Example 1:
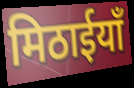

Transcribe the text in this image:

मिठाईयाँ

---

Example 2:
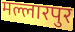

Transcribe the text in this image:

मल्लारपुर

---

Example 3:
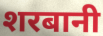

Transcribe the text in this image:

शरबानी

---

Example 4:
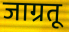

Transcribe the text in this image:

जाग्रतू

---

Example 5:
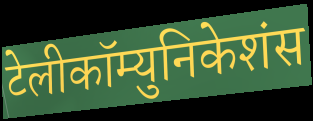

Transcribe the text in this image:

टेलीकॉम्युनिकेशंस